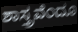
ಶಾಸ್ತ್ರವೆಂದೂ